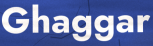
Ghaggar